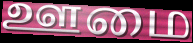
ஊமை